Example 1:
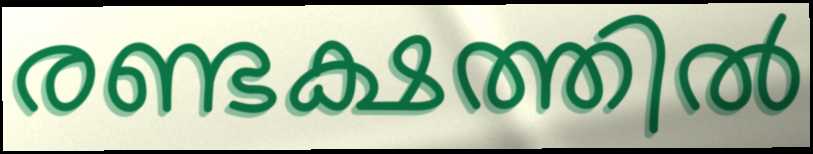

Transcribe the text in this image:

രണ്ടക്ഷത്തിൽ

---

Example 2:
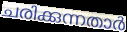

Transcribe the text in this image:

ചരിക്കുന്നതാർ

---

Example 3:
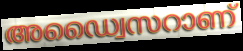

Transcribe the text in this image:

അഡ്വൈസറാണ്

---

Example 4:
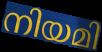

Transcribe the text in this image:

നിയമി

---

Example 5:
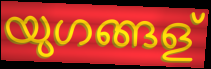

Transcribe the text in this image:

യുഗങ്ങള്